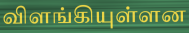
விளங்கியுள்ளன